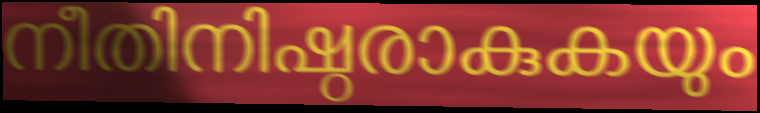
നീതിനിഷ്ഠരാകുകയും